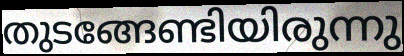
തുടങ്ങേണ്ടിയിരുന്നു